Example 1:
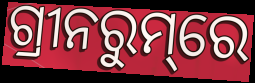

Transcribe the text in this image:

ଗ୍ରୀନରୁମ୍‌ରେ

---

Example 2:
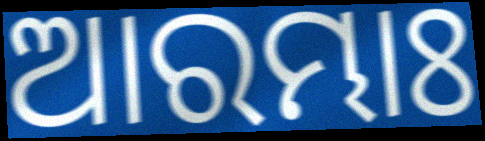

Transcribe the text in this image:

ଆରମ୍ଭାଃ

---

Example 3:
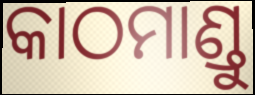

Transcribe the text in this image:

କାଠମାଣ୍ଡୁ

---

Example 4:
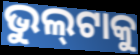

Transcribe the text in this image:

ଭୁଲ୍‍ଟାକୁ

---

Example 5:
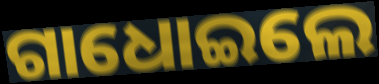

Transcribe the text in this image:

ଗାଧୋଇଲେ